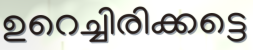
ഉറെച്ചിരിക്കട്ടെ